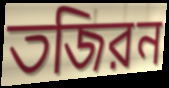
তজিরন